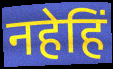
नहेहिं